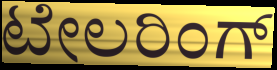
ಟೇಲರಿಂಗ್